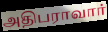
அதிபராவார்